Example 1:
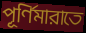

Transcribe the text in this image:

পূর্ণিমারাতে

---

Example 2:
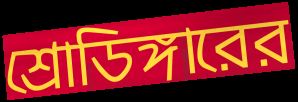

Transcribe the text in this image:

শ্রোডিঙ্গারের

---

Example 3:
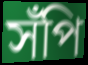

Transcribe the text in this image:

সঁপি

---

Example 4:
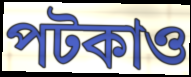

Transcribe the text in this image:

পটকাও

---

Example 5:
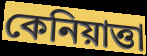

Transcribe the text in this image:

কেনিয়াত্তা